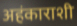
अहंकाराशी